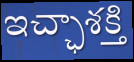
ఇచ్ఛాశక్తి